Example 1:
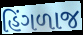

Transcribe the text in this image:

હિંગળાજ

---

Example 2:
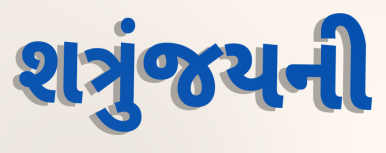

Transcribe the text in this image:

શત્રુંજયની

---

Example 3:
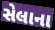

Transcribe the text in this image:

સેલાના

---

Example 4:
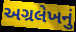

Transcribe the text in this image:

અગ્રલેખનું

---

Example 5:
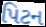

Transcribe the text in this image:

પિટન